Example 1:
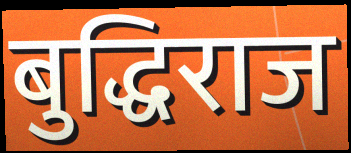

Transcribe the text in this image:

बुद्धिराज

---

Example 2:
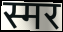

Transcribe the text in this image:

स्मर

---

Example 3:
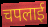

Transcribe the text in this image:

चपलाई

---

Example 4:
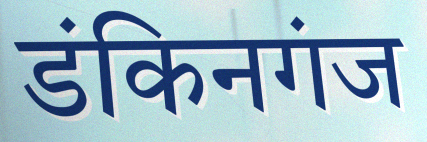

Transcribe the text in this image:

डंकिनगंज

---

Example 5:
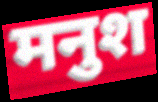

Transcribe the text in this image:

मनुश